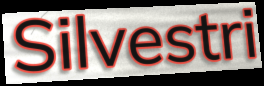
Silvestri